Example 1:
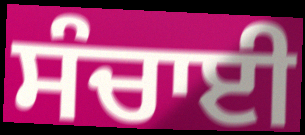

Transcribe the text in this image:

ਸੰਚਾਈ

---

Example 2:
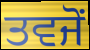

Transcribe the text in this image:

ਤਵਜੋਂ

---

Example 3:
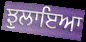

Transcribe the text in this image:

ਝੁਲਾਇਆ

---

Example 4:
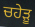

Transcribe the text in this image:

ਚਹੇੜੂ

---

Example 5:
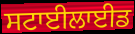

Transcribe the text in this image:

ਸਟਾਈਲਾਈਡ